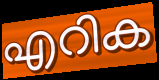
എറിക